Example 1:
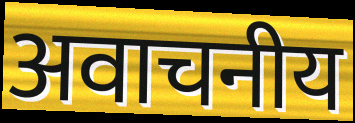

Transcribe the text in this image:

अवाचनीय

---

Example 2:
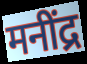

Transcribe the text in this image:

मनींद्र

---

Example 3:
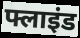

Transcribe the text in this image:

फ्लाइंड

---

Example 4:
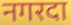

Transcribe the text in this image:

नगरदा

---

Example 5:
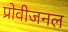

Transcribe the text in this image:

प्रोवीजनल